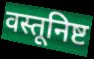
वस्तूनिष्ट